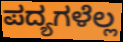
ಪದ್ಯಗಳೆಲ್ಲ